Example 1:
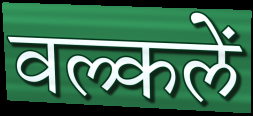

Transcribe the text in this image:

वल्कलें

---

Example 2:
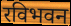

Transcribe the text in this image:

रविभवन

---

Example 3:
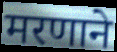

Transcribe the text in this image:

मरणाने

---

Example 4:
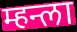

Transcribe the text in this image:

म्हन्ला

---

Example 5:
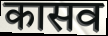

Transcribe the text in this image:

कासव